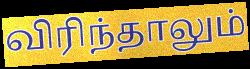
விரிந்தாலும்